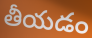
తీయడం